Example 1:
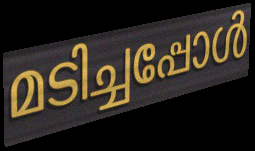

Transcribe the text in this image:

മടിച്ചപ്പോൾ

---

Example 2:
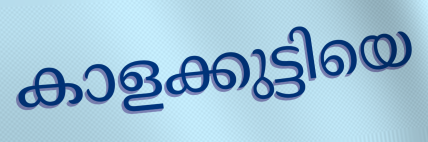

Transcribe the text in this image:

കാളക്കുട്ടിയെ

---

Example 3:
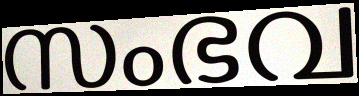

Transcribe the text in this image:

സംഭവ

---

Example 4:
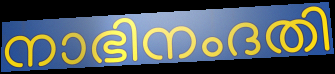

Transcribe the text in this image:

നാഭിനംദതി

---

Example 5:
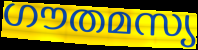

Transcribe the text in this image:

ഗൗതമസ്യ